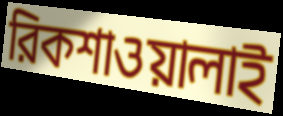
রিকশাওয়ালাই